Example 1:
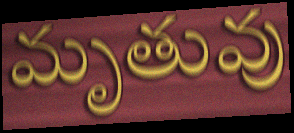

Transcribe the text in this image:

మృతువు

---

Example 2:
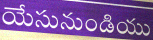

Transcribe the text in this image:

యేసునుండియు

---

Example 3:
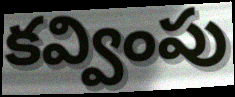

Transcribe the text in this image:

కవ్వింపు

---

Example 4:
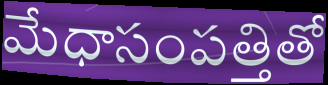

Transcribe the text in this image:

మేధాసంపత్తితో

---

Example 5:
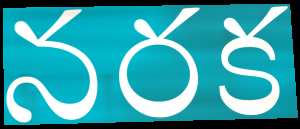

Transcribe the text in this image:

నరక